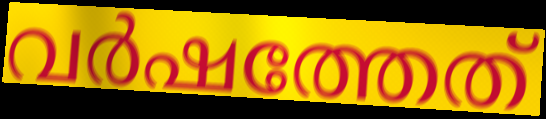
വർഷത്തേത്